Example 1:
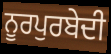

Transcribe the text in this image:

ਨੂਰਪੁਰਬੇਦੀ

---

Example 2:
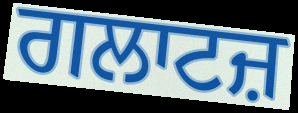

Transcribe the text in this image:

ਗਲਾਟਜ਼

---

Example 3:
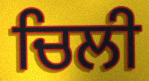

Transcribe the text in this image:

ਚਿਲੀ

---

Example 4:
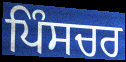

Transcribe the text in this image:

ਪਿੰਸਚਰ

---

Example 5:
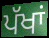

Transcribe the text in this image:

ਪੱਖਾਂ